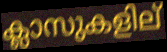
ക്ലാസുകളില്